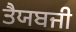
ਤੈਯਬਜੀ